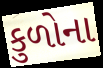
કુળોના